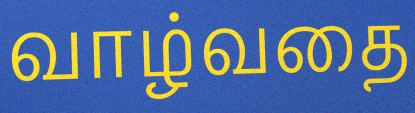
வாழ்வதை